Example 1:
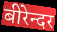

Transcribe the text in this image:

बीरेन्दर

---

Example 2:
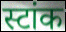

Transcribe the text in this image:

स्टांक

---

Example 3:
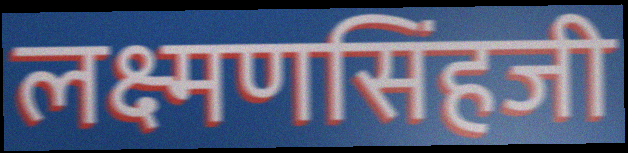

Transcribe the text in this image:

लक्ष्मणसिंहजी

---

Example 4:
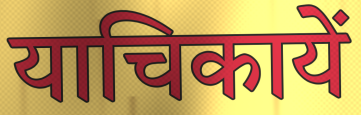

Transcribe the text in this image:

याचिकायें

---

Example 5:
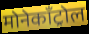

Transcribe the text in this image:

मोनेकॉंट्रोल